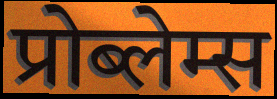
प्रोब्लेम्स